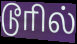
டூரில்